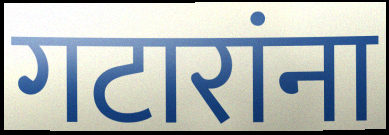
गटारांना